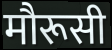
मौरूसी